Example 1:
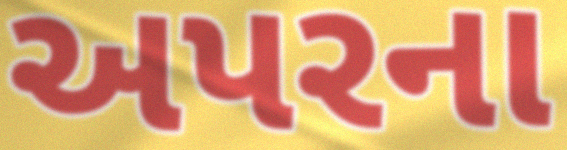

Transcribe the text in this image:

અપરના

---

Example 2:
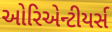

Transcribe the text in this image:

ઓરિએન્ટીયર્સ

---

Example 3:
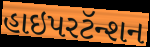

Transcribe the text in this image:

હાઇપરટૅન્શન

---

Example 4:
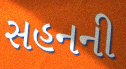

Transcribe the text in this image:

સહનની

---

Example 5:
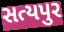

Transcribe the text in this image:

સત્યપુર